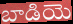
బాడియె